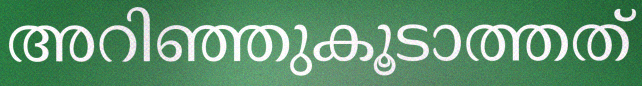
അറിഞ്ഞുകൂടാത്തത്